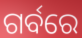
ଗର୍ବରେ